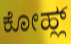
ಕೋಹ್ಲ್